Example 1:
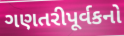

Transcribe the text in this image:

ગણતરીપૂર્વકનો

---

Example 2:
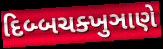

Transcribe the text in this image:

દિબ્બચક્ખુઞાણે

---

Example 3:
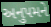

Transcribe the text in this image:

અનુપમને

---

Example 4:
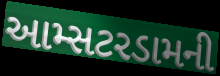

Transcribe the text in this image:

આમ્સટરડામની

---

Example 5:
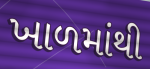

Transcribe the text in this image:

ખાળમાંથી